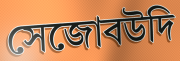
সেজোবউদি